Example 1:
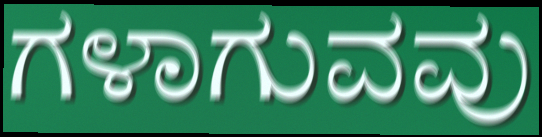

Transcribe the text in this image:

ಗಳಾಗುವವು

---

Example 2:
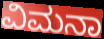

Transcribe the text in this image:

ವಿಮನಾ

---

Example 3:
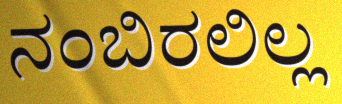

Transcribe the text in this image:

ನಂಬಿರಲಿಲ್ಲ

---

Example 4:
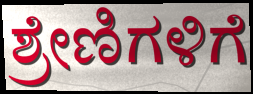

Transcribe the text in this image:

ಶ್ರೇಣಿಗಳಿಗೆ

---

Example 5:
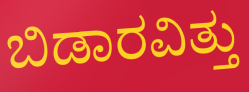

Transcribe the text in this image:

ಬಿಡಾರವಿತ್ತು